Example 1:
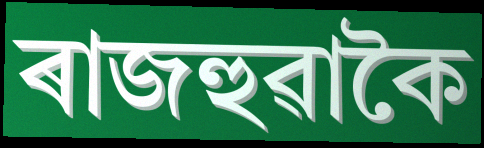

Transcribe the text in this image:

ৰাজহুৱাকৈ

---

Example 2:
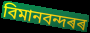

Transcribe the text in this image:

বিমানবন্দৰৰ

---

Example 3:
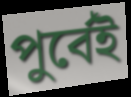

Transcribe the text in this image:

পুৰ্বেই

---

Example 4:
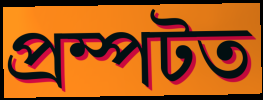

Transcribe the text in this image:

প্ৰম্পটত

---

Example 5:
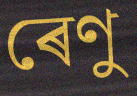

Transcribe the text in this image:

ৰেণু